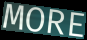
MORE